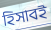
হিসাবই